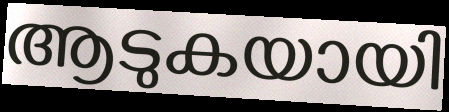
ആടുകയായി